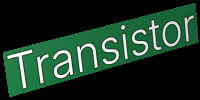
Transistor